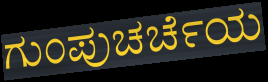
ಗುಂಪುಚರ್ಚೆಯ